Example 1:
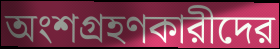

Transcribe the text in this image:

অংশগ্রহণকারীদের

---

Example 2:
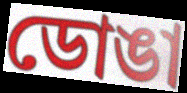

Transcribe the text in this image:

ডোঙা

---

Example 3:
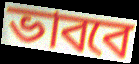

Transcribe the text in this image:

ভাববে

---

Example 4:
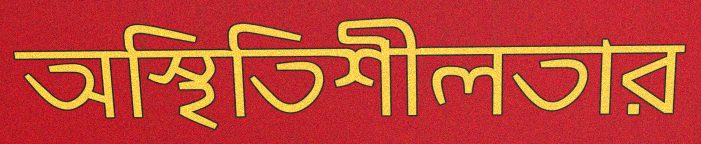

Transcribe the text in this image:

অস্থিতিশীলতার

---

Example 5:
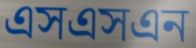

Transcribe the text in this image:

এসএসএন